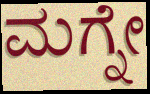
ಮಗ್ನೇ